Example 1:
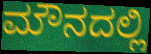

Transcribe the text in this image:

ಮೌನದಲ್ಲಿ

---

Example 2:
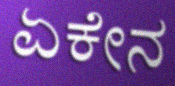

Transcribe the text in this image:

ಏಕೇನ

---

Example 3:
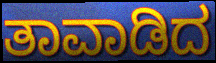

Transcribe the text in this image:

ತಾವಾಡಿದ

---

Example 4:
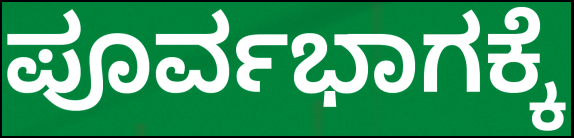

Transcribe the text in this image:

ಪೂರ್ವಭಾಗಕ್ಕೆ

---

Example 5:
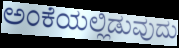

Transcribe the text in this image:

ಅಂಕೆಯಲ್ಲಿಡುವುದು